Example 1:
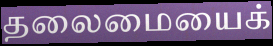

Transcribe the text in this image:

தலைமையைக்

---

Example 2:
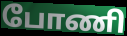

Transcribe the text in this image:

போணி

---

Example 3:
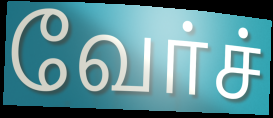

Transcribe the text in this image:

வேர்ச்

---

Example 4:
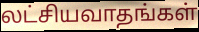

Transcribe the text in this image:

லட்சியவாதங்கள்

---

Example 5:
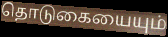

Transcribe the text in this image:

தொடுகையையும்